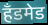
हॅंडमेड